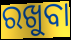
ରଖୁବା